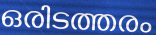
ഒരിടത്തരം